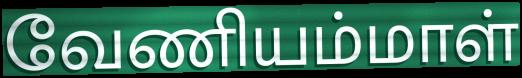
வேணியம்மாள்